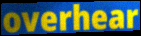
overhear